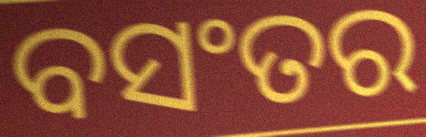
ବସଂତର